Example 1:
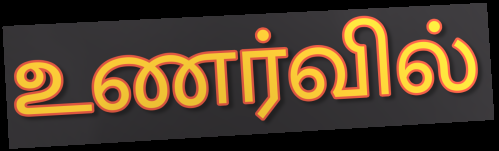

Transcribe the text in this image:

உணர்வில்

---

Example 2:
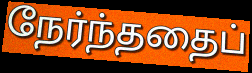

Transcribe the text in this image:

நேர்ந்ததைப்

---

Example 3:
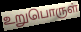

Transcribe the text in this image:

உறுபொருள்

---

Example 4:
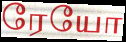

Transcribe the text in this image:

ரேயோ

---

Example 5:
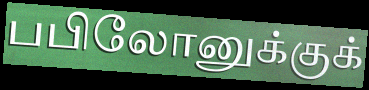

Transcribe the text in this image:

பபிலோனுக்குக்